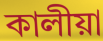
কালীয়া